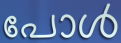
പോൾ